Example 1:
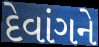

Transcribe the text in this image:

દેવાંગને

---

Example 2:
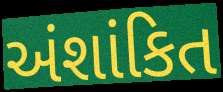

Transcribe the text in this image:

અંશાંકિત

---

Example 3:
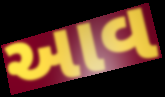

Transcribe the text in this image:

આવ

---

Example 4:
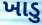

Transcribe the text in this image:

ખાડુ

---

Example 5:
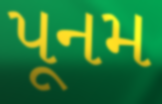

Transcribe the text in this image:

પૂનમ